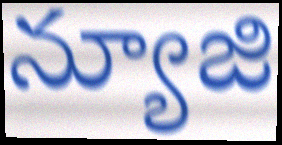
న్యూజి